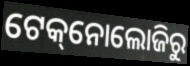
ଟେକ୍‌ନୋଲୋଜିରୁ